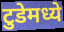
टुडेमध्ये